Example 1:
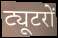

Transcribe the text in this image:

ट्यूटरों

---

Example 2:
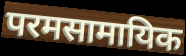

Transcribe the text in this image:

परमसामायिक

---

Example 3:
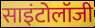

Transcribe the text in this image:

साइंटोलॉजी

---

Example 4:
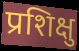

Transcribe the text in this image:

प्रशिक्षु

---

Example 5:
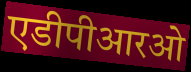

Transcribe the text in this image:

एडीपीआरओ